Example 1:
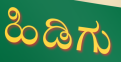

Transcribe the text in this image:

ಹಿಡಿಗು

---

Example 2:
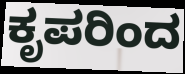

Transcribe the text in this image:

ಕೃಪರಿಂದ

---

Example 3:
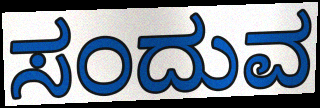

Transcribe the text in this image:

ಸಂದುವ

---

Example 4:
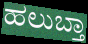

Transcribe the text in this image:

ಹಲುಬ್ತಾ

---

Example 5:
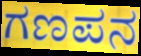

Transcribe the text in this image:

ಗಣಪನ